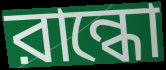
রান্ধো